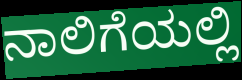
ನಾಲಿಗೆಯಲ್ಲಿ